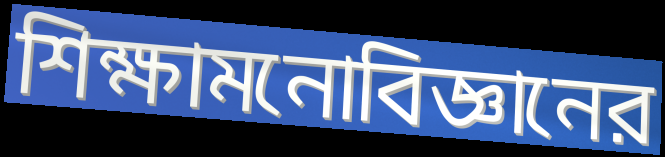
শিক্ষামনোবিজ্ঞানের